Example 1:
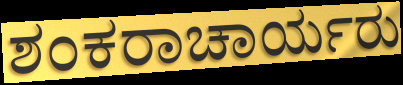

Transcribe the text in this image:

ಶಂಕರಾಚಾರ್ಯರು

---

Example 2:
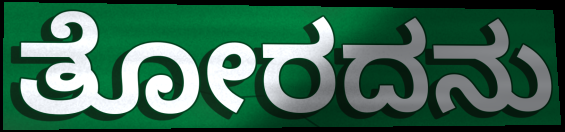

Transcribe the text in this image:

ತೋರದನು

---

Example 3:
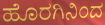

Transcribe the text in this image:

ಹೊರಗಿನಿಂದ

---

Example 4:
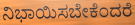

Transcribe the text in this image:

ನಿಭಾಯಿಸಬೇಕೆಂದರೆ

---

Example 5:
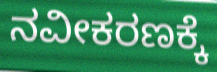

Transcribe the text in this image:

ನವೀಕರಣಕ್ಕೆ